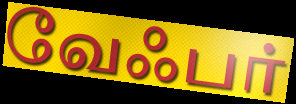
வேஃபர்